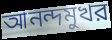
আনন্দমুখর